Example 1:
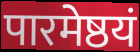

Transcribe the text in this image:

पारमेष्ठयं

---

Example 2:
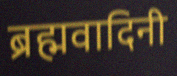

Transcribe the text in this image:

ब्रह्मवादिनी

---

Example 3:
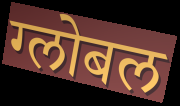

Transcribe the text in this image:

ग्लोबल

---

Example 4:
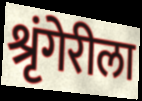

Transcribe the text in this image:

श्रृंगेरीला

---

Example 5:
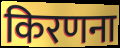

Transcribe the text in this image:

किरणना